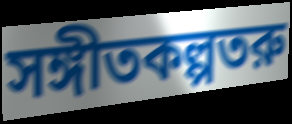
সঙ্গীতকল্পতরু